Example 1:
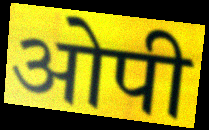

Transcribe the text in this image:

ओपी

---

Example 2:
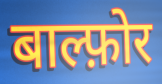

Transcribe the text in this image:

बाल्फ़ोर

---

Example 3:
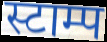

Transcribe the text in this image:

स्टाम्प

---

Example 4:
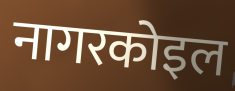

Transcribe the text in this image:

नागरकोइल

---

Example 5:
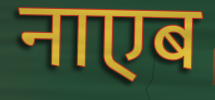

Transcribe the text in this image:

नाएब